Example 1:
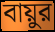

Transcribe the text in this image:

বায়ুর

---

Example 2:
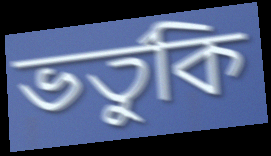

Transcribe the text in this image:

ভর্তুকি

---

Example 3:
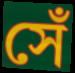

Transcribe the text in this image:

সেঁ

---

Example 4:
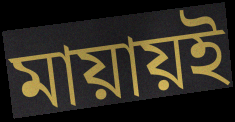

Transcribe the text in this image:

মায়ায়ই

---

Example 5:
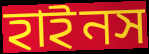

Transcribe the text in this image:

হাইনস